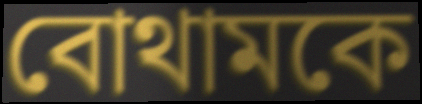
বোথামকে